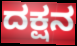
ದಕ್ಷನ